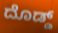
ದೊಡ್ಡ್